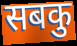
सबकु